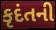
કૃદંતની